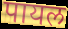
पायल